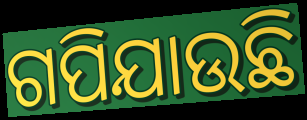
ଗପିଯାଉଛି